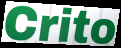
Crito